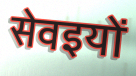
सेवइयों